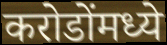
करोडोंमध्ये